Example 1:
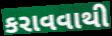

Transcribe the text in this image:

કરાવવાથી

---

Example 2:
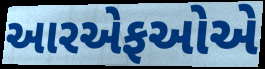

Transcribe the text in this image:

આરએફઓએ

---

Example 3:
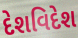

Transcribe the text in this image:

દેશવિદેશ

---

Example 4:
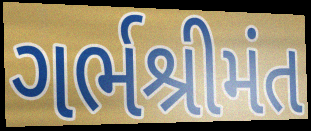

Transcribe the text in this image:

ગર્ભશ્રીમંત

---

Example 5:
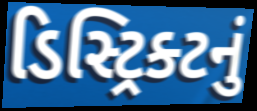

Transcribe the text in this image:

ડિસ્ટ્રિક્ટનું